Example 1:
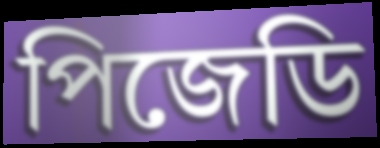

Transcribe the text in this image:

পিজেডি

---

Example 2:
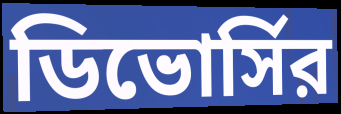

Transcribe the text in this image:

ডিভোর্সির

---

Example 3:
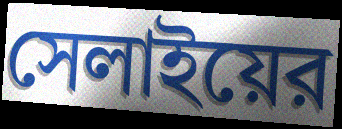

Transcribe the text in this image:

সেলাইয়ের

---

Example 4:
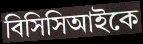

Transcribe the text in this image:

বিসিসিআইকে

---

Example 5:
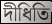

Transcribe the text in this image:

দীধিতি